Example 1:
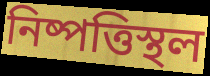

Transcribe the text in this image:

নিষ্পত্তিস্থল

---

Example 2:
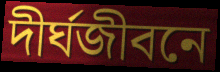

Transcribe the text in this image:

দীর্ঘজীবনে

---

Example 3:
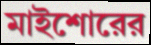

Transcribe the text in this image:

মাইশোরের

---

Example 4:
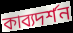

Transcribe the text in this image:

কাব্যদর্শন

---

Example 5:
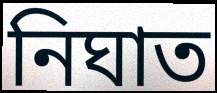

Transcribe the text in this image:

নিঘাত